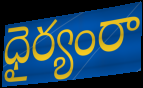
ధైర్యంరా